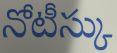
నోటీస్కు